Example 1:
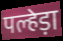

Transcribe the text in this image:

पल्हेड़ा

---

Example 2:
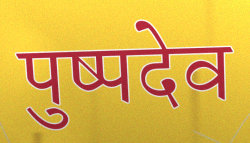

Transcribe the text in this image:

पुष्पदेव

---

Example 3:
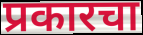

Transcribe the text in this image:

प्रकारचा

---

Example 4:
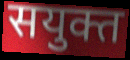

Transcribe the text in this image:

सयुक्‍त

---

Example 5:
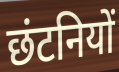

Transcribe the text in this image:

छंटनियों